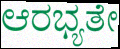
ಆರಭ್ಯತೇ